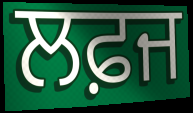
ਲਫ਼ਜ